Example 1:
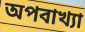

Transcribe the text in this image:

অপবাখ্যা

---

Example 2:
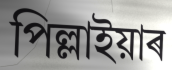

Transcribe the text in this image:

পিল্লাইয়াৰ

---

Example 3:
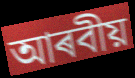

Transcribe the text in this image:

আৰবীয়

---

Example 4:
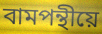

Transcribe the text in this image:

বামপন্থীয়ে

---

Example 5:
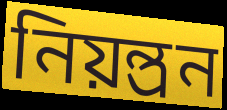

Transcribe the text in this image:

নিয়ন্ত্ৰন